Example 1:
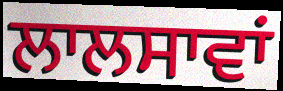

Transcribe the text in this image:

ਲਾਲਸਾਵਾਂ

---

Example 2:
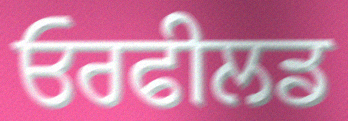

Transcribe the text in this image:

ਓਰਫੀਲਡ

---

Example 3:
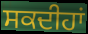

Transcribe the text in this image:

ਸਕਦੀਹਾਂ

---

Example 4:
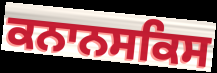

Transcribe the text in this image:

ਕਨਾਨਸਕਿਸ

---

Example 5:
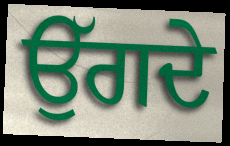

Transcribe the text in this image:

ਉੱਗਦੇ